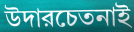
উদারচেতনাই